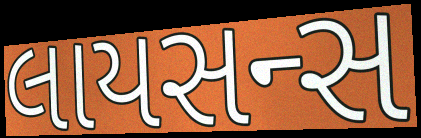
લાયસન્સ